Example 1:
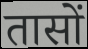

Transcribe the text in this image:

तासों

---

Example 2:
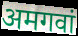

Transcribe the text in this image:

अमगवां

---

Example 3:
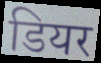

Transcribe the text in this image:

डियर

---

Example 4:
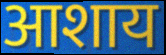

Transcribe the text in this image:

आशाय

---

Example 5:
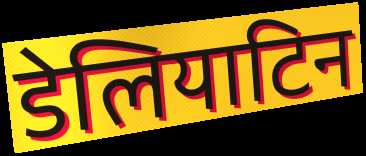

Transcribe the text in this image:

डेलियाटिन